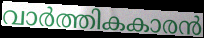
വാർത്തികകാരൻ